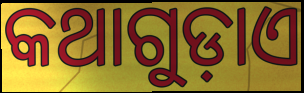
କଥାଗୁଡ଼ାଏ